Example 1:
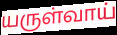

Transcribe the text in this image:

யருள்வாய்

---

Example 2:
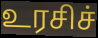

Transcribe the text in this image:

உரசிச்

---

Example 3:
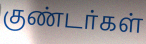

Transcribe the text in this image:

குண்டர்கள்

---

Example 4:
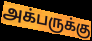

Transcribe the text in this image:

அக்பருக்கு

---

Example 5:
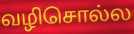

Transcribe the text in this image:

வழிசொல்ல